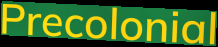
Precolonial